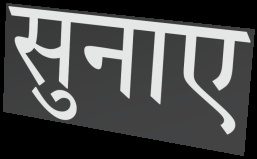
सुनाए